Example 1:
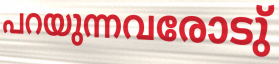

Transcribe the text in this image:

പറയുന്നവരോടു്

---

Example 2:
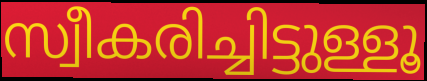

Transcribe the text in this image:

സ്വീകരിച്ചിട്ടുള്ളൂ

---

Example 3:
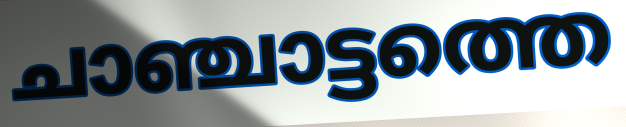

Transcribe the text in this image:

ചാഞ്ചാട്ടത്തെ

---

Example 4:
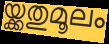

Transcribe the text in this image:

യ്ക്കതുമൂലം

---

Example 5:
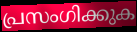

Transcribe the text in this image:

പ്രസംഗിക്കുക